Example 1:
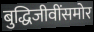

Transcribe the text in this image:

बुद्धिजीवींसमोर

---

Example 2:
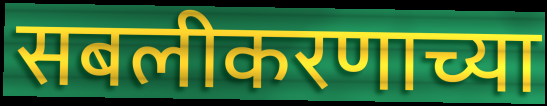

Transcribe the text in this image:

सबलीकरणाच्या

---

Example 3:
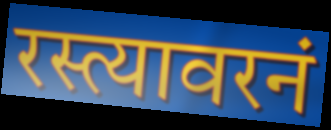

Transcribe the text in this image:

रस्त्यावरनं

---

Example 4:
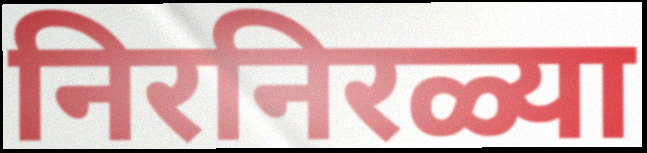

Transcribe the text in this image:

निरनिरळ्या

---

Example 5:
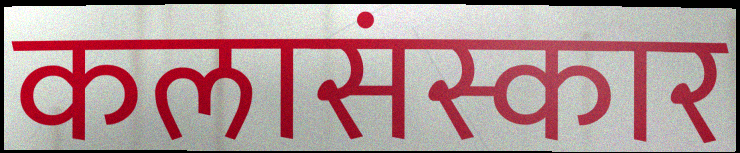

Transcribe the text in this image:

कलासंस्कार